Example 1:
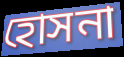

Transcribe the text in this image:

হোসনা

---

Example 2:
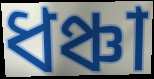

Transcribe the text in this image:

ধঞ্চা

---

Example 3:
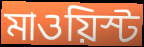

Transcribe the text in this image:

মাওয়িস্ট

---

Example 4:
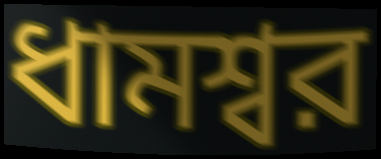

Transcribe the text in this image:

ধামশ্বর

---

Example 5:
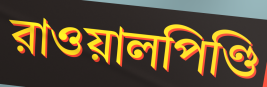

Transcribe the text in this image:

রাওয়ালপিণ্ডি